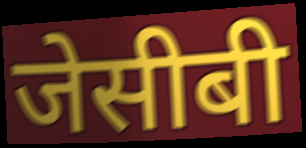
जेसीबी